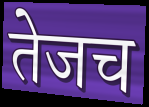
तेजच